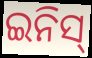
ଇନିସ୍